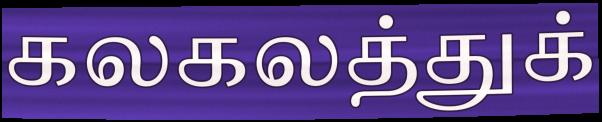
கலகலத்துக்